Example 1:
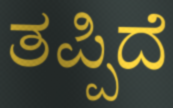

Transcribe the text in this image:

ತಪ್ಪಿದೆ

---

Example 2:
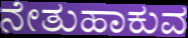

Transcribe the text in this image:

ನೇತುಹಾಕುವ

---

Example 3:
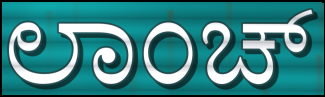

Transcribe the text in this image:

ಲಾಂಚ್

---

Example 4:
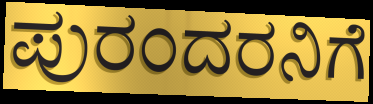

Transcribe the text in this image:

ಪುರಂದರನಿಗೆ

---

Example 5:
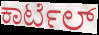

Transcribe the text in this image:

ಕಾರ್ಟೆಲ್